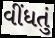
વીંધતું